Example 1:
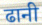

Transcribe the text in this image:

ढानी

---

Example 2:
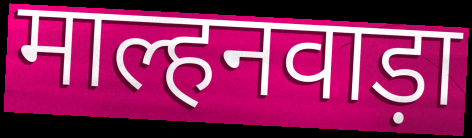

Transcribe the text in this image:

माल्हनवाड़ा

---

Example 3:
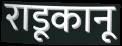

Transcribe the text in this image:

राडूकानू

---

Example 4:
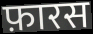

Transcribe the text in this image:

फ़ारस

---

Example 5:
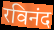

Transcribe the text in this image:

रविनंद